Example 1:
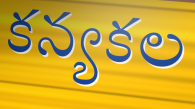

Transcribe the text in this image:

కన్యకల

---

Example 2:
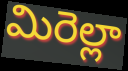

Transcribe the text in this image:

మిరెల్లా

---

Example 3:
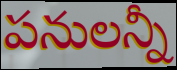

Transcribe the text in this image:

పనులన్నీ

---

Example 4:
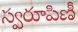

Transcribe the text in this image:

స్వరూపిణీ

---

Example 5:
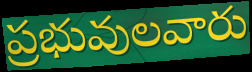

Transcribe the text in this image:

ప్రభువులవారు